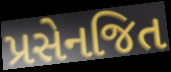
પ્રસેનજિત